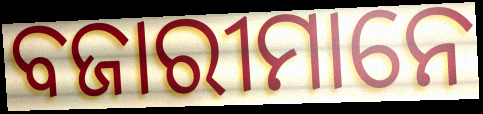
ବଜାରୀମାନେ